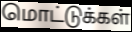
மொட்டுக்கள்